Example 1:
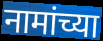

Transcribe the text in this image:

नामांच्या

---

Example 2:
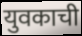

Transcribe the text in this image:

युवकाची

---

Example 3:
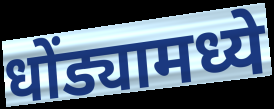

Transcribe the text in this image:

धोंड्यामध्ये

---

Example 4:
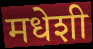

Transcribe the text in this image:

मधेशी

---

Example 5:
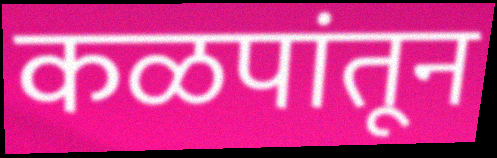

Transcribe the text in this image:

कळपांतून